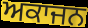
ਅਕਾਜਨ